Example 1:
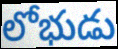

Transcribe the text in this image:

లోభుడు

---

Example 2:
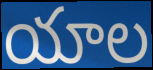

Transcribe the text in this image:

యాల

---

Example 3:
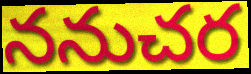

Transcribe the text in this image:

ననుచర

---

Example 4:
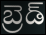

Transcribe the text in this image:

బ్రెడ్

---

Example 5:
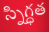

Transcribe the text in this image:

స్నిగ్ధత